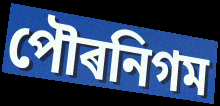
পৌৰনিগম